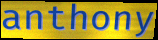
anthony